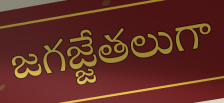
జగజ్జేతలుగా